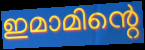
ഇമാമിന്റെ